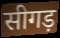
सीगड़